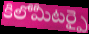
కిలోమీటర్పై